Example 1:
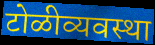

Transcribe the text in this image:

टोळीव्यवस्था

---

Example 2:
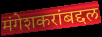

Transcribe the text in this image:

मंगेशकरांबद्दल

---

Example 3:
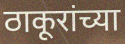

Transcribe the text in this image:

ठाकूरांच्या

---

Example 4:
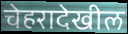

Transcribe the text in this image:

चेहरादेखील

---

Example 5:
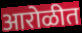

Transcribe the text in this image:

आरोळीत